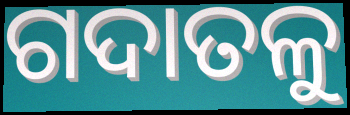
ଗଦାତଳୁ